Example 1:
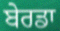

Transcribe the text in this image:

ਬੇਰਡਾ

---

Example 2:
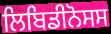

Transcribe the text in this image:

ਲਿਬਿਡੀਨੋਸਸ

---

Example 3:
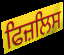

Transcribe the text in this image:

ਫਿਜ਼ਲਿਸ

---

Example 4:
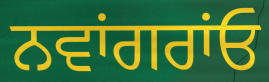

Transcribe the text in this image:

ਨਵਾਂਗਰਾਂਓ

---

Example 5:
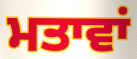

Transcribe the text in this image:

ਮਤਾਵਾਂ